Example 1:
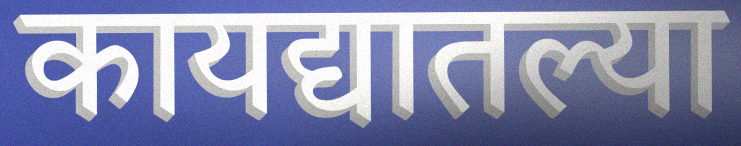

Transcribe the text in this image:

कायद्यातल्या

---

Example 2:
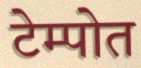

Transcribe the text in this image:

टेम्पोत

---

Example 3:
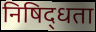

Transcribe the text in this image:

निषिद्धता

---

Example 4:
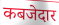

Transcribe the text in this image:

कबजेदार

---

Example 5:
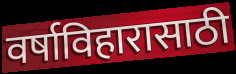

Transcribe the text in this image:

वर्षाविहारासाठी